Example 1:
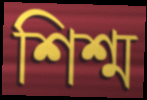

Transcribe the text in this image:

শিশ্ম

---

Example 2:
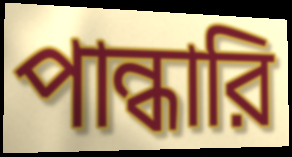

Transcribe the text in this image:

পান্ধারি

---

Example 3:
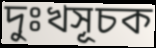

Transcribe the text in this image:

দুঃখসূচক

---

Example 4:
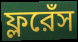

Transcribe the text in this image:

ফ্লরেঁস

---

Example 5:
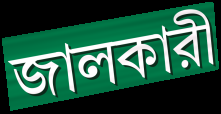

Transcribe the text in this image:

জালকারী